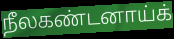
நீலகண்டனாய்க்